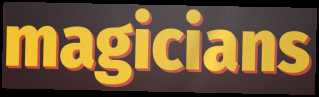
magicians